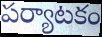
పర్యాటకం